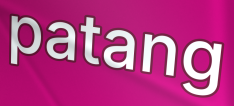
patang